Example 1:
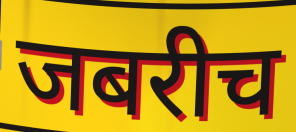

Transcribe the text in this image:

जबरीच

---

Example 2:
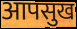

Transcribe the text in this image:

आपसुख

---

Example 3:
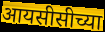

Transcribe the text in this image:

आयसीसीच्या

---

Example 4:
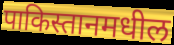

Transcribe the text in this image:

पाकिस्तानमधील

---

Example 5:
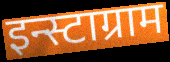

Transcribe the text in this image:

इन्स्टाग्राम